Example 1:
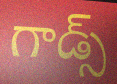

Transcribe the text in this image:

గాడ్స్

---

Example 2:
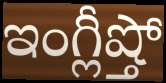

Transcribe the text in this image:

ఇంగ్లీష్తో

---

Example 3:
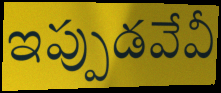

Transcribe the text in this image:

ఇప్పుడవేవీ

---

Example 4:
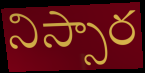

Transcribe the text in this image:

నిస్సార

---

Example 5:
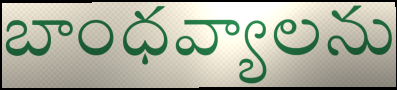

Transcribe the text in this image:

బాంధవ్యాలను